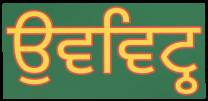
ਉਵਵਿਟ੍ਠ